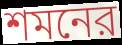
শমনের